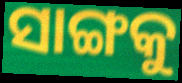
ସାଙ୍ଗକୁ